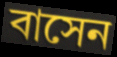
বাসেন